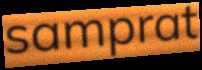
samprat